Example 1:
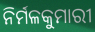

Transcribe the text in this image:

ନିର୍ମଳକୁମାରୀ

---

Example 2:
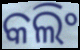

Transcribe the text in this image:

କଲିଂ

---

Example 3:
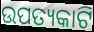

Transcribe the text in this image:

ଉପତ୍ୟକାଟି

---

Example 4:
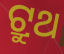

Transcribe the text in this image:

ଟ୍ରୁଥ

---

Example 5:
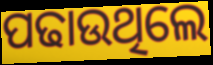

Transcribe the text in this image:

ପଢାଉଥିଲେ